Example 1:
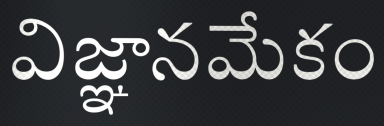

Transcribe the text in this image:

విజ్ఞానమేకం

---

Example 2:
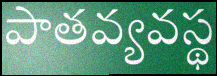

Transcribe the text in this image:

పాతవ్యవస్థ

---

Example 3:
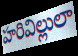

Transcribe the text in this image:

హరివిల్లులా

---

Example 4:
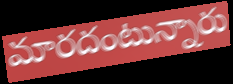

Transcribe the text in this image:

మారదంటున్నారు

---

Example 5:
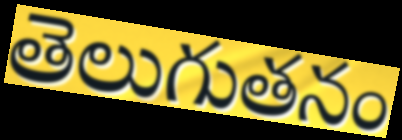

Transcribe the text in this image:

తెలుగుతనం